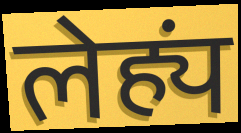
लेह्यं